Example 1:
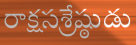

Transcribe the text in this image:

రాక్షసశ్రేష్ఠుడు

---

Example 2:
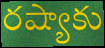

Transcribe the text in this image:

రష్యాకు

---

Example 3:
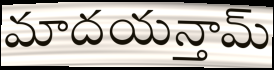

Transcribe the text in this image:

మాదయన్తామ్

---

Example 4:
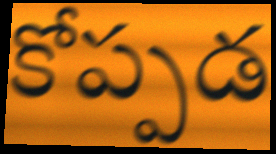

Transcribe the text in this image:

కోప్పడ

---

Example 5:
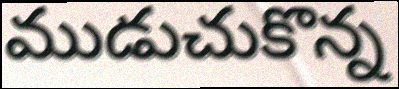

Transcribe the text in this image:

ముడుచుకొన్న